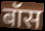
बॉस